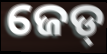
ଜେଡ୍